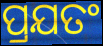
ପ୍ରଯତଂ